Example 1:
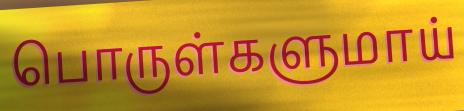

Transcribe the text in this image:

பொருள்களுமாய்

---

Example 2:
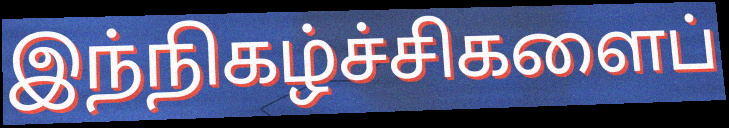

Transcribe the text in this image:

இந்நிகழ்ச்சிகளைப்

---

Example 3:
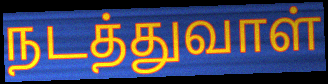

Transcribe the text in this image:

நடத்துவாள்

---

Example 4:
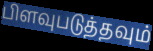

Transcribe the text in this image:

பிளவுபடுத்தவும்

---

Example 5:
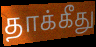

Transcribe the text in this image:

தாக்கீது